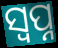
ସ୍ବପ୍ନ